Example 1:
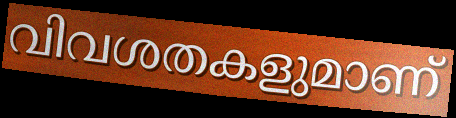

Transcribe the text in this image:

വിവശതകളുമാണ്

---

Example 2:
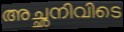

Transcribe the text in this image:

അച്ഛനിവിടെ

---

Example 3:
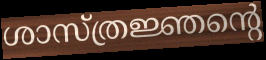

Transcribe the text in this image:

ശാസ്ത്രജ്ഞന്റെ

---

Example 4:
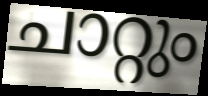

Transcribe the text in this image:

ചാറ്റും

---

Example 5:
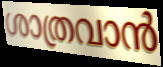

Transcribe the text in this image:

ശാത്രവാൻ